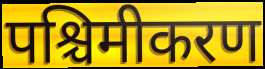
पश्चिमीकरण